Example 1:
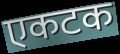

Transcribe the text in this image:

एकटक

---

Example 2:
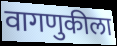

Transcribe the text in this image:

वागणुकीला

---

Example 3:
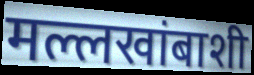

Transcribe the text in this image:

मल्लखांबाशी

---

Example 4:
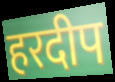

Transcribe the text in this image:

हरदीप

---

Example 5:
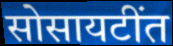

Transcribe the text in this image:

सोसायटींत